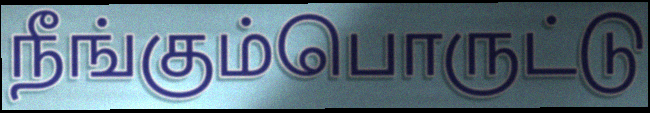
நீங்கும்பொருட்டு